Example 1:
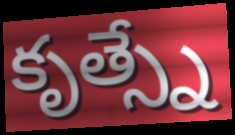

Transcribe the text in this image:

కృత్స్నే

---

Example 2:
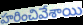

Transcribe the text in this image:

హరించివేశాయి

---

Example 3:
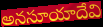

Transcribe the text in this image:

అనసూయాదేవి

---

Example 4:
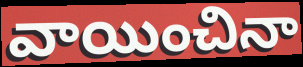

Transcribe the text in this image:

వాయించినా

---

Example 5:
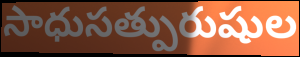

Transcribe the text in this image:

సాధుసత్పురుషుల